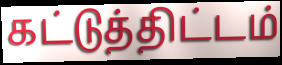
கட்டுத்திட்டம்